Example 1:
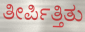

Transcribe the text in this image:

ತೀರ್ಪಿತ್ತಿತು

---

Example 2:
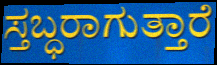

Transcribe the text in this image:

ಸ್ತಬ್ಧರಾಗುತ್ತಾರೆ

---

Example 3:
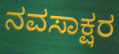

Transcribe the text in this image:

ನವಸಾಕ್ಷರ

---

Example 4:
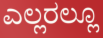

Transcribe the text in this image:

ಎಲ್ಲರಲ್ಲೂ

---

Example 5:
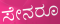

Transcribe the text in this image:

ಸೇನರೂ